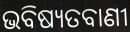
ଭବିଷ୍ୟତବାଣୀ